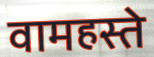
वामहस्ते